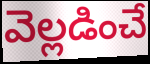
వెల్లడించే